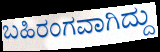
ಬಹಿರಂಗವಾಗಿದ್ದು